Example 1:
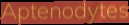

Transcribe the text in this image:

Aptenodytes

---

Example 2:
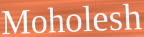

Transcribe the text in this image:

Moholesh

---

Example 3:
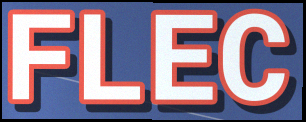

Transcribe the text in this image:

FLEC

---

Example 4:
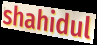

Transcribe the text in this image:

shahidul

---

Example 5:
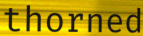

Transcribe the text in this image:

thorned